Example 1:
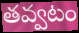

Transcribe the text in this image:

తవ్వటం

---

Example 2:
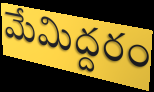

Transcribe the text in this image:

మేమిద్దరం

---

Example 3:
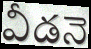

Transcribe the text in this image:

వీడనె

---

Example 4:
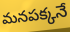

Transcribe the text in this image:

మనపక్కనే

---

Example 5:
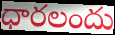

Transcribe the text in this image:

ధారలందు